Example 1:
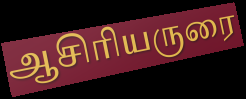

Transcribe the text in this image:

ஆசிரியருரை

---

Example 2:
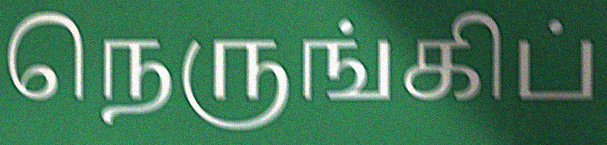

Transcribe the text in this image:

நெருங்கிப்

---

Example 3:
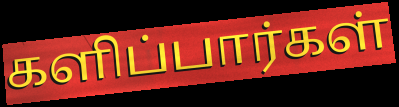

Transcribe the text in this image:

களிப்பார்கள்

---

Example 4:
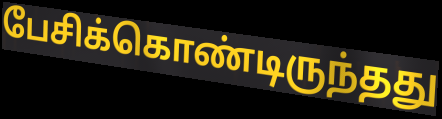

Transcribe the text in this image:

பேசிக்கொண்டிருந்தது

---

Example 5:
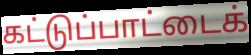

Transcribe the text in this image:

கட்டுப்பாட்டைக்